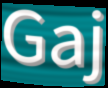
Gaj